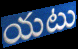
యటు